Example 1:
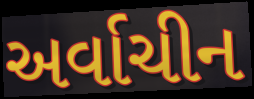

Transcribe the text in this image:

અર્વાચીન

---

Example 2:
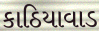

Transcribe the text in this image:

કાઠિયાવાડ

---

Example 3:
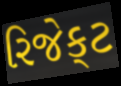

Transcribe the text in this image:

રિજેક્‌ટ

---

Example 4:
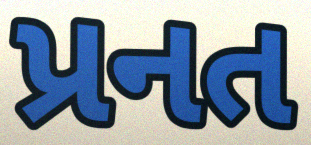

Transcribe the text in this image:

પ્રનત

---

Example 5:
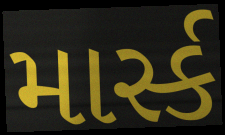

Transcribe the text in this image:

માર્સ્ક